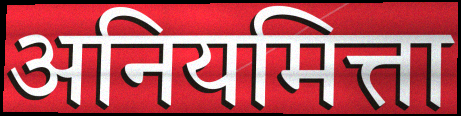
अनियमित्ता